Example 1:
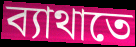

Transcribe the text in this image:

ব্যাথাতে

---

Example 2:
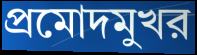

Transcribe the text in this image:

প্রমোদমুখর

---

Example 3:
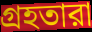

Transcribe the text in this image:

গ্রহতারা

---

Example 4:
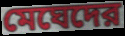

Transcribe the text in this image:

মেঘেদের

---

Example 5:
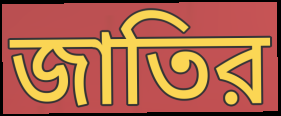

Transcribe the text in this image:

জাতির